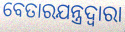
ବେତାରଯନ୍ତ୍ରଦ୍ୱାରା